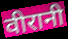
वीरानी